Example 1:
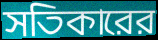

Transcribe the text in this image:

সতিকারের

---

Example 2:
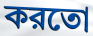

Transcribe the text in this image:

করতো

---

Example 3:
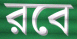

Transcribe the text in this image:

রবে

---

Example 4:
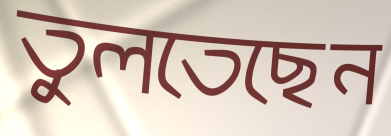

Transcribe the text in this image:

তুলতেছেন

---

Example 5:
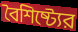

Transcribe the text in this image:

বৈশিষ্ট্যের